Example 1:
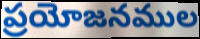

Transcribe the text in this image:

ప్రయోజనముల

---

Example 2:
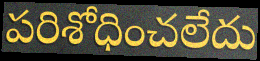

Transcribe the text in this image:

పరిశోధించలేదు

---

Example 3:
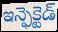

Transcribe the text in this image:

ఇన్ఫెక్టెడ్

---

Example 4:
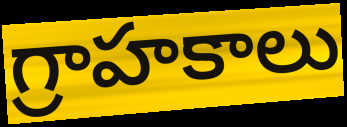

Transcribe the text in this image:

గ్రాహకాలు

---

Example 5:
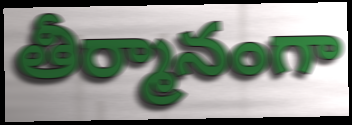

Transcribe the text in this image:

తీర్మానంగా